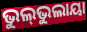
ଭୁଲ୍‌ଭୁଲାୟା